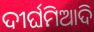
ଦୀର୍ଘମିଆଦି